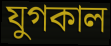
যুগকাল